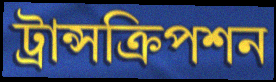
ট্রান্সক্রিপশন